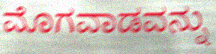
ಮೊಗವಾಡವನ್ನು